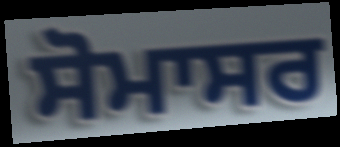
ਸੋਮਾਸਰ